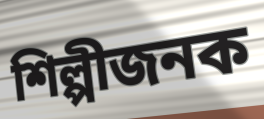
শিল্পীজনক